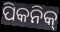
ପିକନିକ୍